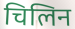
चिलिन